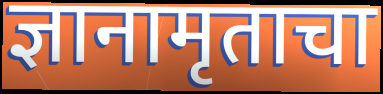
ज्ञानामृताचा